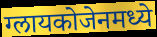
ग्लायकोजेनमध्ये